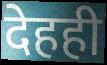
देहही